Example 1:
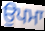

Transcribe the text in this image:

ਉਪਮਾ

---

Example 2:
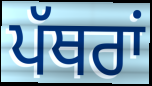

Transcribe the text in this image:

ਪੱਥਰਾਂ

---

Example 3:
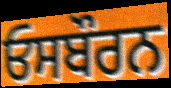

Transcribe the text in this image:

ਓਸਬੌਰਨ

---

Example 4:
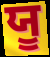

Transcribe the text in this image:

ਯੂ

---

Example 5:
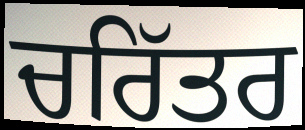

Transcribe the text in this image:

ਚਰਿੱਤਰ